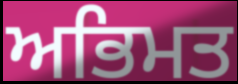
ਅਭਿਮਤ